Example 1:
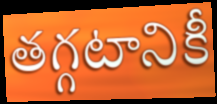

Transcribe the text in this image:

తగ్గటానికీ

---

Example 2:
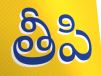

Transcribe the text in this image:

తీపి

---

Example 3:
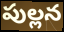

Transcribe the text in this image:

పుల్లన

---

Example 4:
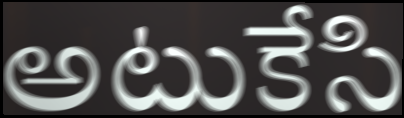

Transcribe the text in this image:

అటుకేసి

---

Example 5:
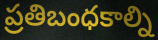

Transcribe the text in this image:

ప్రతిబంధకాల్ని